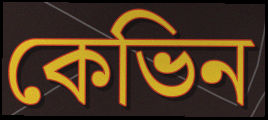
কেভিন